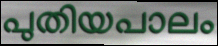
പുതിയപാലം